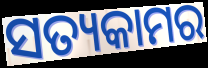
ସତ୍ୟକାମର